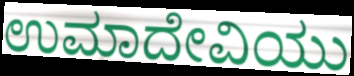
ಉಮಾದೇವಿಯು